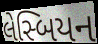
લેસ્બિયન